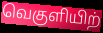
வெகுளியிற்